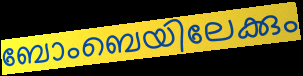
ബോംബെയിലേക്കും